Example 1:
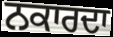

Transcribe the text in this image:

ਨਕਾਰਦਾ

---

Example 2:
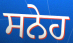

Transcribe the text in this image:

ਸਨੇਹ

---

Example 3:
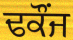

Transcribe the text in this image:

ਢਕੌਂਜ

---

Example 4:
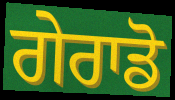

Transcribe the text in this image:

ਗੇਰਾਡੋ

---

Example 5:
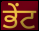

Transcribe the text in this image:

ਭੇਂਟ